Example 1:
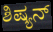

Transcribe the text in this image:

ಶಿಷ್ಯನ್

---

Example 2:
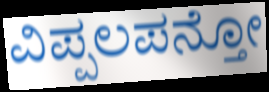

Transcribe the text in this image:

ವಿಪ್ಪಲಪನ್ತೋ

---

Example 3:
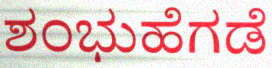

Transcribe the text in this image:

ಶಂಭುಹೆಗಡೆ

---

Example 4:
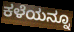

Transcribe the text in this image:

ಕಳೆಯನ್ನೂ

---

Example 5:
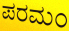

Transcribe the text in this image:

ಪರಮಂ